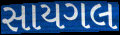
સાયગલ